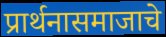
प्रार्थनासमाजाचे